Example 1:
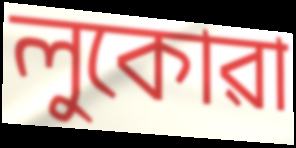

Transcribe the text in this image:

লুকোৱা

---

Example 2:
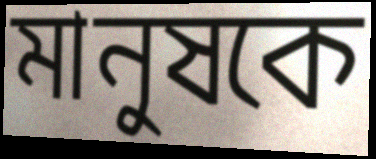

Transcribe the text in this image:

মানুষকে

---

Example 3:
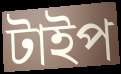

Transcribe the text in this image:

টাইপ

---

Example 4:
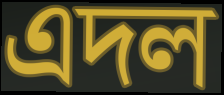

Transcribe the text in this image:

এদল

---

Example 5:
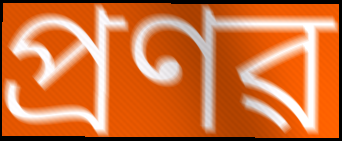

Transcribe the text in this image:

প্ৰণৱ